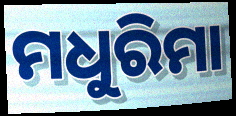
ମଧୁରିମା